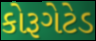
કોરૂગેટેડ